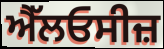
ਐੱਲਓਸੀਜ਼